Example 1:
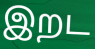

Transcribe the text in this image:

இறட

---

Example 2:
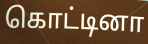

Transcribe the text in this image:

கொட்டினா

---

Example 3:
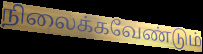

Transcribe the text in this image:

நிலைக்கவேண்டும்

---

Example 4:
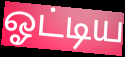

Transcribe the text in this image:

ஓட்டிய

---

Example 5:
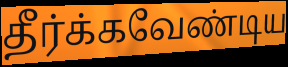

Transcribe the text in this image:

தீர்க்கவேண்டிய